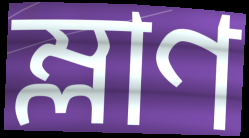
ম্লাণ